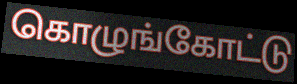
கொழுங்கோட்டு